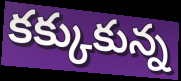
కక్కుకున్న